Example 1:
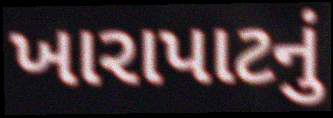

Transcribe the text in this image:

ખારાપાટનું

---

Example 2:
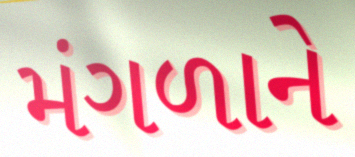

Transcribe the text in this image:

મંગળાને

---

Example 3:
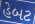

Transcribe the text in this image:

હેબટ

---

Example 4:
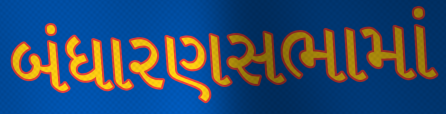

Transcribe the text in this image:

બંધારણસભામાં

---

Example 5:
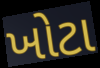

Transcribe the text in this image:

ખોટા